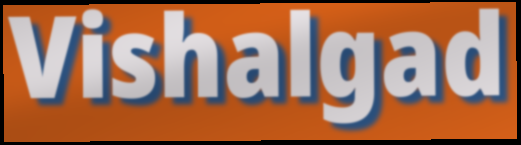
Vishalgad